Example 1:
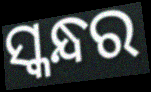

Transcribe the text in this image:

ସ୍କନ୍ଧର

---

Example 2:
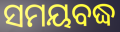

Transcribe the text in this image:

ସମୟବଦ୍ଧ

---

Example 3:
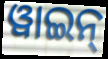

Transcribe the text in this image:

ୱାଇନ୍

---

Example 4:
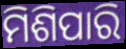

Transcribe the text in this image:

ମିଶିପାରି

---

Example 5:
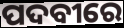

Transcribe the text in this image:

ପଦବୀରେ